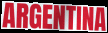
ARGENTINA